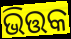
ଭିତ୍ତକ